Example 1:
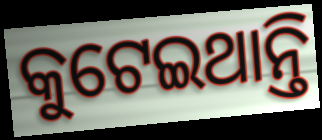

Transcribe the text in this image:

କୁଟେଇଥାନ୍ତି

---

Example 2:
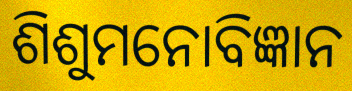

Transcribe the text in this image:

ଶିଶୁମନୋବିଜ୍ଞାନ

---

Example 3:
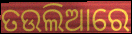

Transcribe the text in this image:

ତଉଲିଆରେ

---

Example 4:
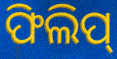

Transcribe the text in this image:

ଫିଲିପ୍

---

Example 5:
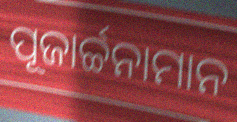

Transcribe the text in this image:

ପୂଜାର୍ଚ୍ଚନାମାନ